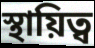
স্থায়িত্ব